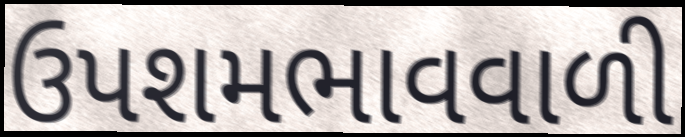
ઉપશમભાવવાળી